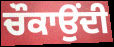
ਚੌਕਾਉਂਦੀ